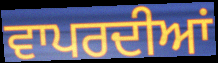
ਵਾਪਰਦੀਆਂ